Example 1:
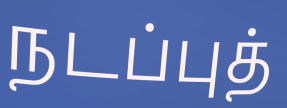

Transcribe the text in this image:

நடப்புத்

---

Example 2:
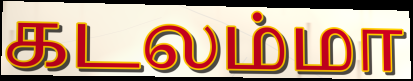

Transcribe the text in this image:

கடலம்மா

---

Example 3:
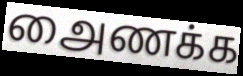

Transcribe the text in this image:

அைணக்க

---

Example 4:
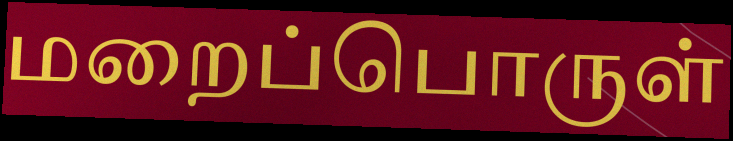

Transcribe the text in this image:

மறைப்பொருள்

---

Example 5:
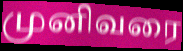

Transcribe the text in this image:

முனிவரை